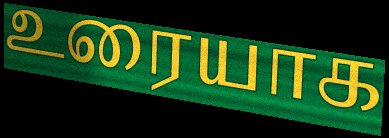
உரையாக